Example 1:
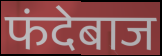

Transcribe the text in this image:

फंदेबाज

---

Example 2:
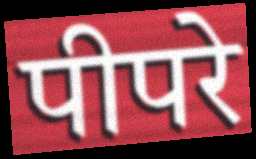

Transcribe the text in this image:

पीपरे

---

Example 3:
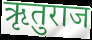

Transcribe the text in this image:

ऋृतुराज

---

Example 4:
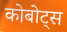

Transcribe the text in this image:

कोबोट्स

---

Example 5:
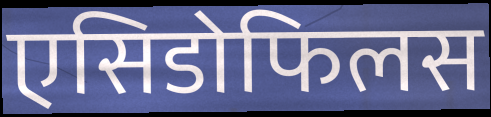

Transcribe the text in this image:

एसिडोफिलस